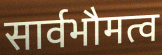
सार्वभौमत्व